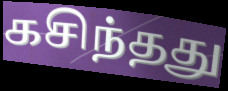
கசிந்தது